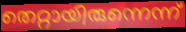
തെറ്റായിരുന്നെന്ന്